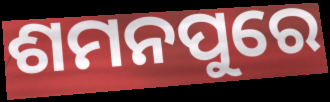
ଶମନପୁରେ